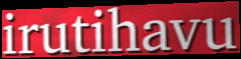
irutihavu